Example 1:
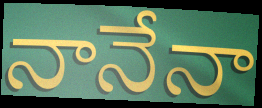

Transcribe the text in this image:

నానేనా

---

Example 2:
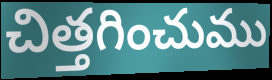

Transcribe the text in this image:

చిత్తగించుము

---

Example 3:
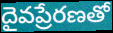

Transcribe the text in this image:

దైవప్రేరణతో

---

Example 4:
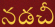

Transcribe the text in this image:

నడచీ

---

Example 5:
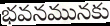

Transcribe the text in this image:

భవనమునకు